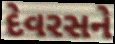
દેવરસને